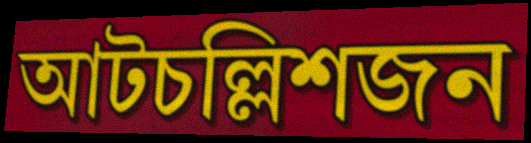
আটচল্লিশজন